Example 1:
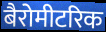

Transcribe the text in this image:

बैरोमीटरिक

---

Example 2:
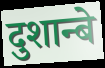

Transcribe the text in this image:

दुशान्बे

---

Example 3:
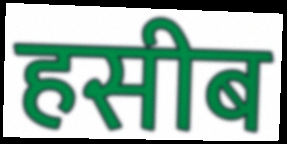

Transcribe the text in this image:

हसीब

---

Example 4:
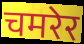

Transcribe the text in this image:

चमरेर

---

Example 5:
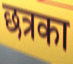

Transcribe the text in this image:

छत्रका